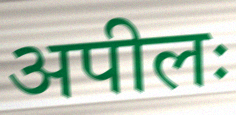
अपीलः